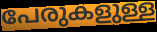
പേരുകളുള്ള